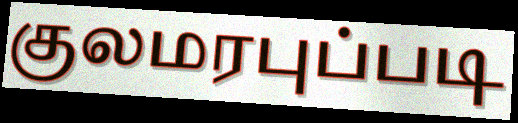
குலமரபுப்படி